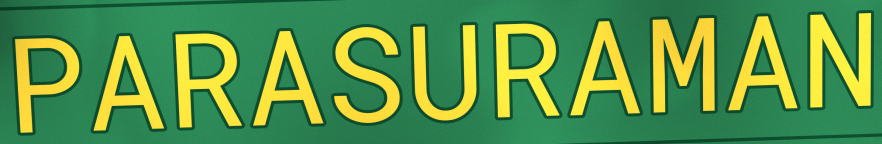
PARASURAMAN